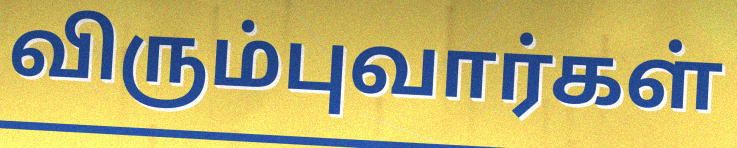
விரும்புவார்கள்